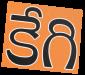
కేగి